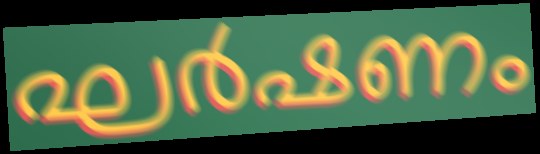
ഘർഷണം